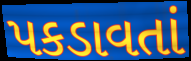
પકડાવતાં